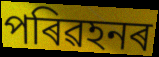
পৰিৱহনৰ